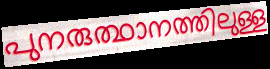
പുനരുത്ഥാനത്തിലുള്ള